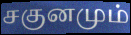
சகுனமும்